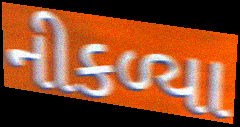
નીકળ્યા